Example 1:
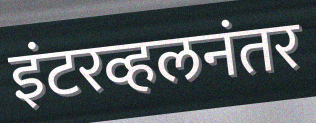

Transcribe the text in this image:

इंटरव्हलनंतर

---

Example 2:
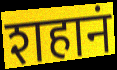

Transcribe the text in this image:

शहानं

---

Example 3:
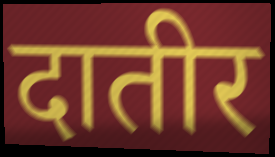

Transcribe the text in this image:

दातीर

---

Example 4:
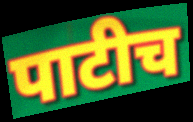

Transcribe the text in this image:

पाटीच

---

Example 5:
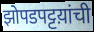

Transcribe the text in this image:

झोपडपट्टय़ांची